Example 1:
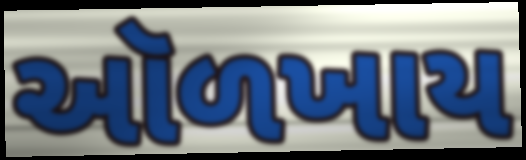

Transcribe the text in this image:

ઑળખાય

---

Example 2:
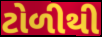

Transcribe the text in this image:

ટોળીથી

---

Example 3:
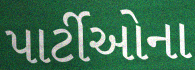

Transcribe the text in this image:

પાર્ટીઓના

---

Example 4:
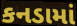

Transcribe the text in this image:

કનડામાં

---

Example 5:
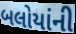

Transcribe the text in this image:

બલોયાંની